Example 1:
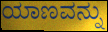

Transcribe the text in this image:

ಯಾಣವನ್ನು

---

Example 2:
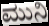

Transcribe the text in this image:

ಮುನಿ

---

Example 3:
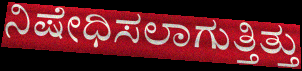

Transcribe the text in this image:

ನಿಷೇಧಿಸಲಾಗುತ್ತಿತ್ತು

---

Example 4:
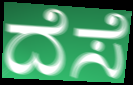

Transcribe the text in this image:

ದೆಸೆ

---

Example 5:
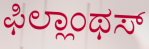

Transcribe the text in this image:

ಫಿಲ್ಲಾಂಥಸ್